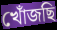
খোঁজছি